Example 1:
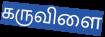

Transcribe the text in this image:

கருவிளை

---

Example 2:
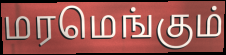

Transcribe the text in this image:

மரமெங்கும்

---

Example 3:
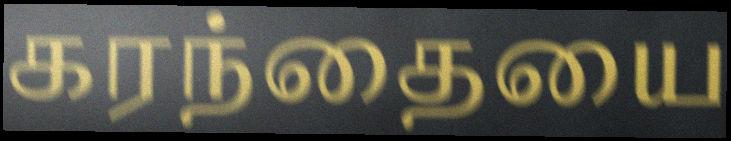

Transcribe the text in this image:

கரந்தையை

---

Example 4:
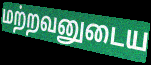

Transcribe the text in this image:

மற்றவனுடைய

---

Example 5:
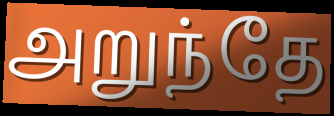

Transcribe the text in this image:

அறுந்தே